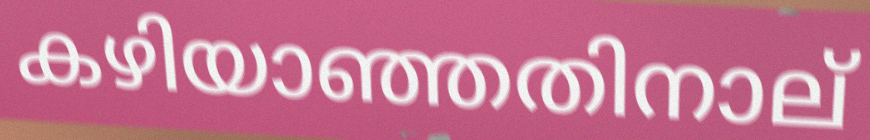
കഴിയാഞ്ഞതിനാല്